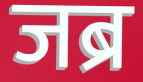
जब्र